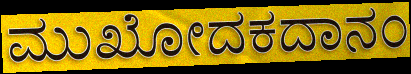
ಮುಖೋದಕದಾನಂ